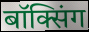
बॉक्सिंग